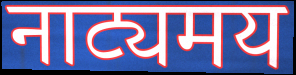
नाट्यमय